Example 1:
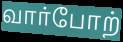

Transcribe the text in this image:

வார்போற்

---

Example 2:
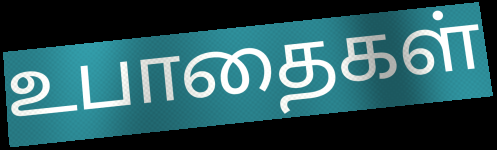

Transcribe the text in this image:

உபாதைகள்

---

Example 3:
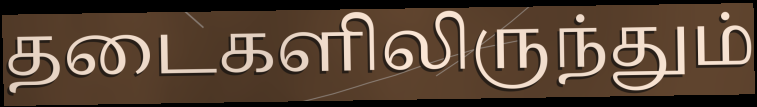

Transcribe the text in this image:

தடைகளிலிருந்தும்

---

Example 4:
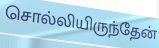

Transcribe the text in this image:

சொல்லியிருந்தேன்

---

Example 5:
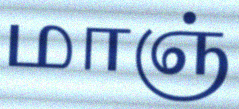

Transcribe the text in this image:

மாஞ்